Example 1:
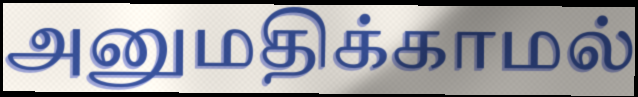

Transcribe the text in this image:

அனுமதிக்காமல்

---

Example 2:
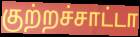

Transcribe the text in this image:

குற்றச்சாட்டா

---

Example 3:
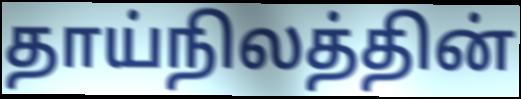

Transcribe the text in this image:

தாய்நிலத்தின்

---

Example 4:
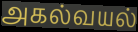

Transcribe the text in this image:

அகல்வயல்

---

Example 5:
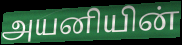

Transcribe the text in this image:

அயனியின்